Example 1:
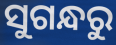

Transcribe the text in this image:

ସୁଗନ୍ଧରୁ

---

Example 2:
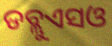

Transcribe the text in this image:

ଡବ୍ଲୁଏସଓ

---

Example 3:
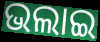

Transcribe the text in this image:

ଭଲାଇ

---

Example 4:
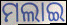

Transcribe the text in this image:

ମଲାଇ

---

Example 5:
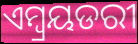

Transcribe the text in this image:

ଏମ୍ବ୍ରୟଡରୀ